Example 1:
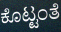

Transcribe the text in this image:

ಕೊಟ್ಟಂತೆ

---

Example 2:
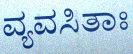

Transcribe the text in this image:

ವ್ಯವಸಿತಾಃ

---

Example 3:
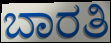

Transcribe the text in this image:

ಬಾರತಿ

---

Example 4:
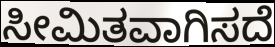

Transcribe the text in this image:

ಸೀಮಿತವಾಗಿಸದೆ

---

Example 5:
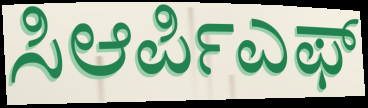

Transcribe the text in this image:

ಸಿಆರ್ಪಿಎಫ್